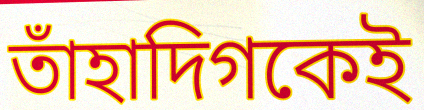
তাঁহাদিগকেই